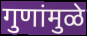
गुणांमुळे